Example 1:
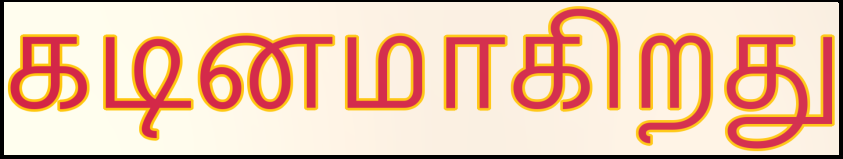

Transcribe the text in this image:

கடினமாகிறது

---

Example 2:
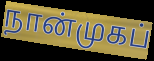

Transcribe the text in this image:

நான்முகப்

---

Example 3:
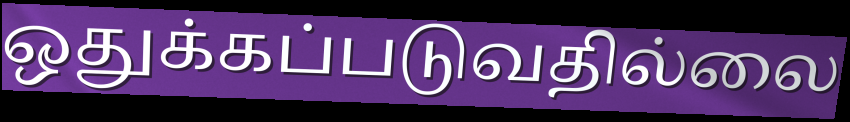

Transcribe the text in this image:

ஒதுக்கப்படுவதில்லை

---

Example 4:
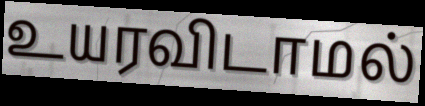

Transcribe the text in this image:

உயரவிடாமல்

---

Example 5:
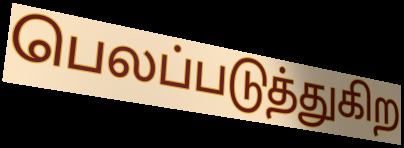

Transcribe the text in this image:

பெலப்படுத்துகிற